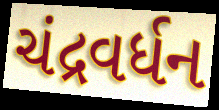
ચંદ્રવર્ધન